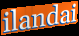
ilandai